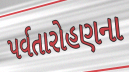
પર્વતારોહણના